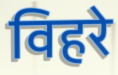
विहरे